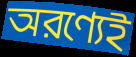
অরণ্যেই